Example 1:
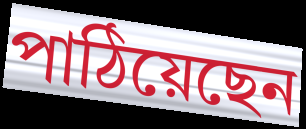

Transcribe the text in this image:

পাঠিয়েছেন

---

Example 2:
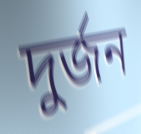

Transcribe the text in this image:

দুর্জন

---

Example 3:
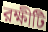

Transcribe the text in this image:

রক্ষীটি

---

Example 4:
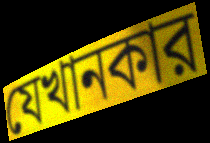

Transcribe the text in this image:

যেখানকার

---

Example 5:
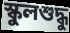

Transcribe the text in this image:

স্কুলশুদ্ধু